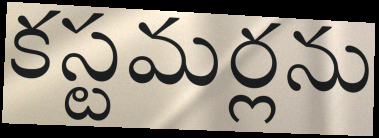
కస్టమర్లను